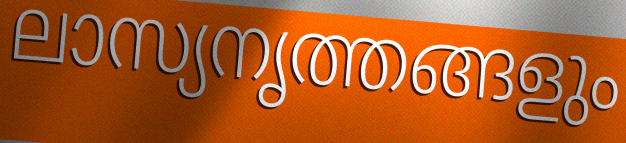
ലാസ്യനൃത്തങ്ങളും